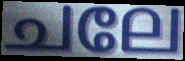
ചലേ